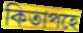
কিতাপহে